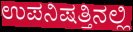
ಉಪನಿಷತ್ತಿನಲ್ಲಿ